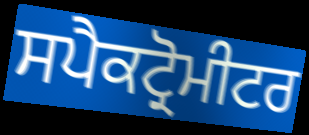
ਸਪੈਕਟ੍ਰੋਮੀਟਰ